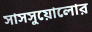
সাসসুয়োলোর